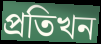
প্ৰতিখন